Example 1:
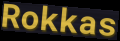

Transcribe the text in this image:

Rokkas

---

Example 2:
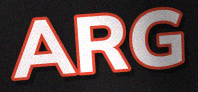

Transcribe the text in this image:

ARG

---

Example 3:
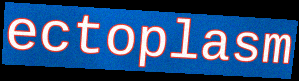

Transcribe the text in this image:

ectoplasm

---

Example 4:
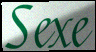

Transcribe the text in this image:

Sexe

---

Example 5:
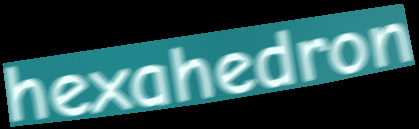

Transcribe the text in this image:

hexahedron